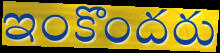
ఇంకొందరు